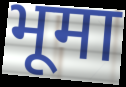
भूमा